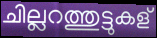
ചില്ലറത്തുട്ടുകള്